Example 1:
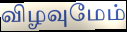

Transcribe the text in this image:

விழவுமேம்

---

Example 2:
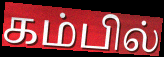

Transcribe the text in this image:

கம்பில்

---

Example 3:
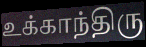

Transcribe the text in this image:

உக்காந்திரு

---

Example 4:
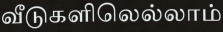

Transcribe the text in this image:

வீடுகளிலெல்லாம்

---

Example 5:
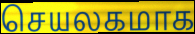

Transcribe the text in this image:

செயலகமாக